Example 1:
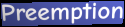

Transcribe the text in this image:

Preemption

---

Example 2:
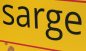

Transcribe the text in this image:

sarge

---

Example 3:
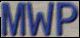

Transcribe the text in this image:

MWP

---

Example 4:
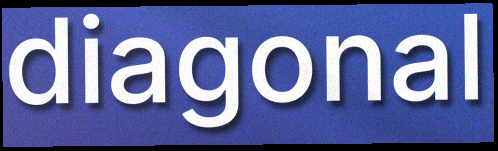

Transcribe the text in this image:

diagonal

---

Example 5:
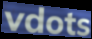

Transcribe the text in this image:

vdots